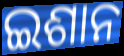
ଇଶାନ